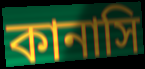
কানাসি